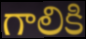
గాలికి